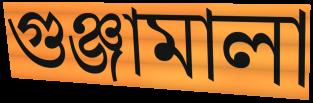
গুঞ্জামালা